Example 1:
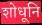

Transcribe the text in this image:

शोधूनि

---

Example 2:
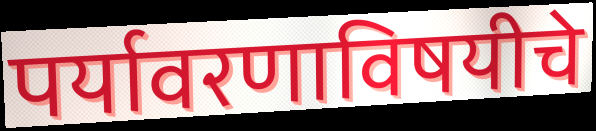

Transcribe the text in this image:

पर्यावरणाविषयीचे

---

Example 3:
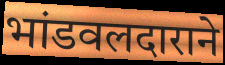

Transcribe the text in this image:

भांडवलदाराने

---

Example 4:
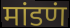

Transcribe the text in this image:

मांडणं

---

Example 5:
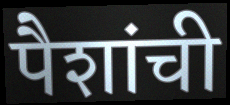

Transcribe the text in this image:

पैशांची